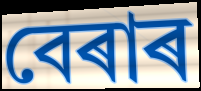
বেৰাৰ